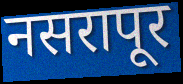
नसरापूर